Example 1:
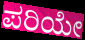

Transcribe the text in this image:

ಪರಿಯೇ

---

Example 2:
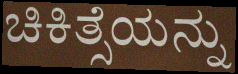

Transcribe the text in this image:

ಚಿಕಿತ್ಸೆಯನ್ನು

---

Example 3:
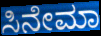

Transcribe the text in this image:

ಸಿನೇಮಾ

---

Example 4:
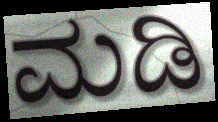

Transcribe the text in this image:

ಮಡಿ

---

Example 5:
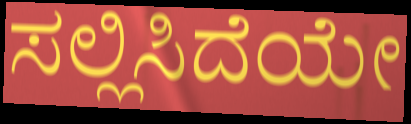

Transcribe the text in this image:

ಸಲ್ಲಿಸಿದೆಯೇ